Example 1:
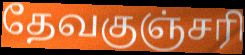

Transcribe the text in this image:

தேவகுஞ்சரி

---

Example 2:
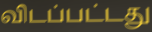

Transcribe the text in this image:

விடப்பட்டது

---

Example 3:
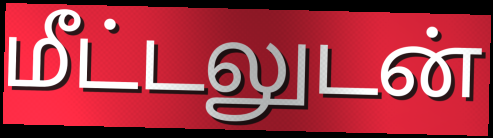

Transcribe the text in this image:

மீட்டலுடன்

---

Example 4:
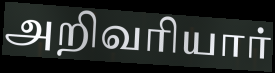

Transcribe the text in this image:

அறிவரியார்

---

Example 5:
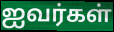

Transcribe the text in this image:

ஐவர்கள்